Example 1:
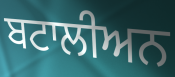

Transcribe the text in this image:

ਬਟਾਲੀਅਨ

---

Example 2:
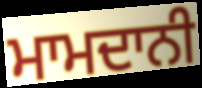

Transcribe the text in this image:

ਮਾਮਦਾਨੀ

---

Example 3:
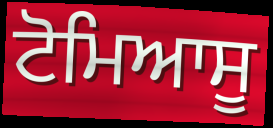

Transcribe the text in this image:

ਟੋਮਿਆਸੂ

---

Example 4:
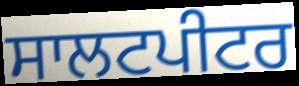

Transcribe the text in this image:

ਸਾਲਟਪੀਟਰ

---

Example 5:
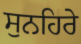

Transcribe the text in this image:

ਸੁਨਹਿਰੇ